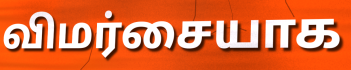
விமர்சையாக